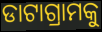
ଡାଟାଗ୍ରାମକୁ